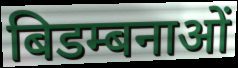
बिडम्बनाओं